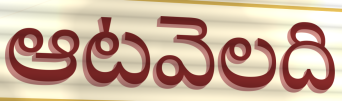
ఆటవెలది